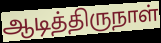
ஆடித்திருநாள்